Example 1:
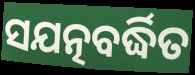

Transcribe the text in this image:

ସଯତ୍ନବର୍ଦ୍ଧିତ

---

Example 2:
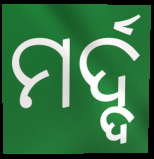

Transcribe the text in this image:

ମର୍ଦ୍ଦ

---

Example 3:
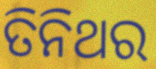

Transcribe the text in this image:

ତିନିଥର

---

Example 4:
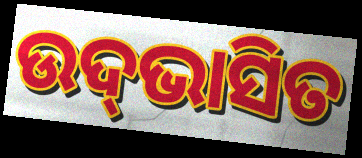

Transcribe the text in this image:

ଉଦ୍‍ଭାସିତ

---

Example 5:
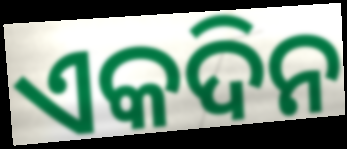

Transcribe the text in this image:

ଏକଦିନ